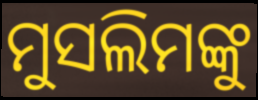
ମୁସଲିମଙ୍କୁ